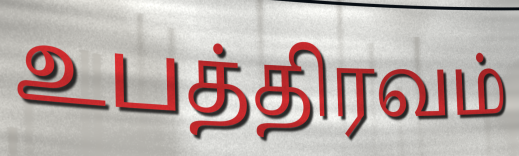
உபத்திரவம்